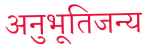
अनुभूतिजन्य